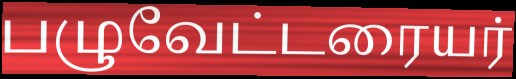
பழுவேட்டரையர்